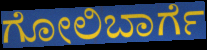
ಗೋಲಿಬಾರ್ಗೆ